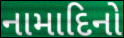
નામાદિનો